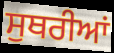
ਸੁਥਰੀਆਂ